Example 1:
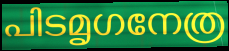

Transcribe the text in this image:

പിടമൃഗനേത്ര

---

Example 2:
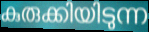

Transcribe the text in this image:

കുരുക്കിയിടുന്ന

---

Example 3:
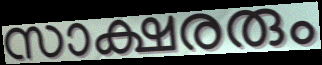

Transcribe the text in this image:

സാക്ഷരരും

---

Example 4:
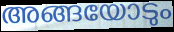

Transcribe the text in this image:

അങ്ങയോടും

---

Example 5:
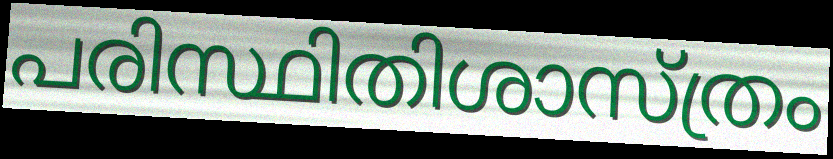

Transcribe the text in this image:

പരിസ്ഥിതിശാസ്ത്രം